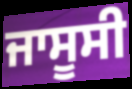
ਜਾਸੂਸੀ